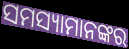
ସମସ୍ୟାମାନଙ୍କର